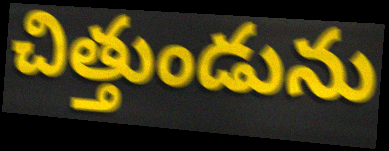
చిత్తుండును